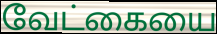
வேட்கையை